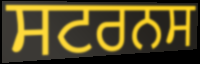
ਸਟਰਨਸ